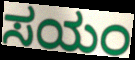
ಸಯಂ